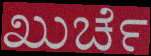
ಖುರ್ಚೆ